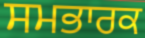
ਸਮਭਾਰਕ